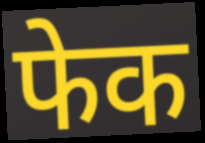
फेक